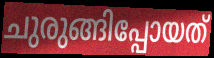
ചുരുങ്ങിപ്പോയത്